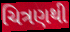
ચિત્રણથી